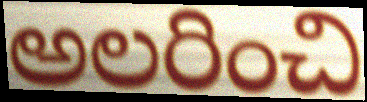
అలరించి